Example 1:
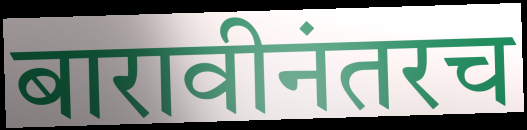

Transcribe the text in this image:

बारावीनंतरच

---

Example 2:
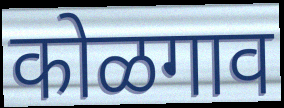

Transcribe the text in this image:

कोळगाव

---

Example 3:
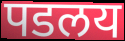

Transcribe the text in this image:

पडलय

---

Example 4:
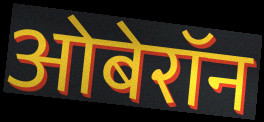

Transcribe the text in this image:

ओबेरॉन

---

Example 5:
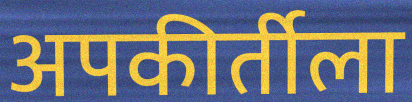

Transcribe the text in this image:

अपकीर्तीला